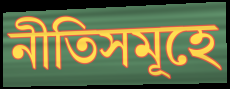
নীতিসমূহে